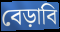
বেড়াবি